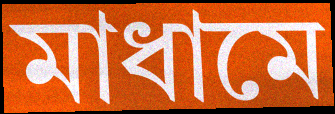
মাধামে